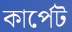
কার্পেট